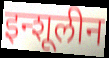
इन्शूलीन